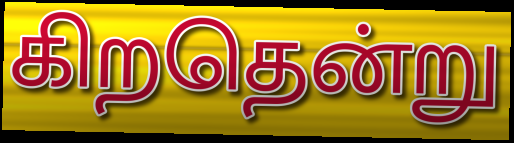
கிறதென்று